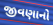
જીવણાનો